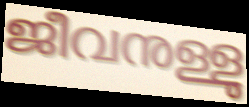
ജീവനുള്ളു